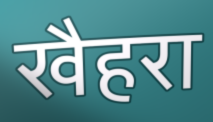
खैहरा